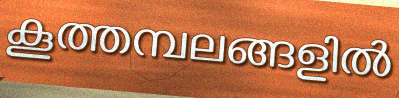
കൂത്തമ്പലങ്ങളിൽ